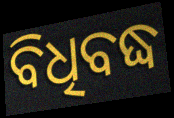
ବିଧିବଦ୍ଧ